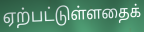
ஏற்பட்டுள்ளதைக்